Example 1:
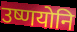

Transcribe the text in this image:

उष्णयोनि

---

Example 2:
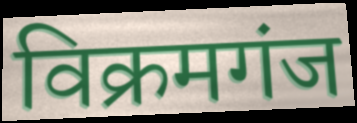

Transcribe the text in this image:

विक्रमगंज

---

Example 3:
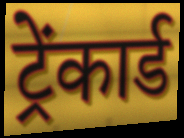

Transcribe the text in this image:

ट्रेंकार्ड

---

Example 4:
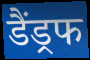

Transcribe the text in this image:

डैंड्रफ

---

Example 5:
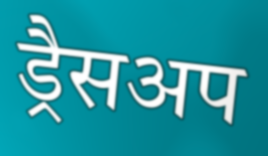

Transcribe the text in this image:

ड्रैसअप